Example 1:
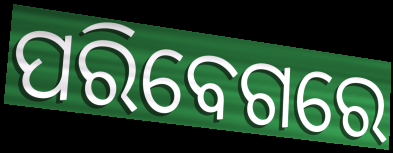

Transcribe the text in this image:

ପରିବେଗରେ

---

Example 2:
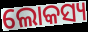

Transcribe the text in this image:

ଲୋକସ୍ୟ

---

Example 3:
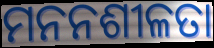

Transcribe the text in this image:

ମନନଶୀଳତା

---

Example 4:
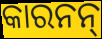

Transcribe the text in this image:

କାରନନ୍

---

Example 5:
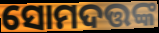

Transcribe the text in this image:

ସୋମଦତ୍ତଙ୍କ